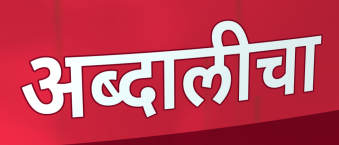
अब्दालीचा